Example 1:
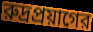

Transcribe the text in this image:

রুদ্রপ্রয়াগের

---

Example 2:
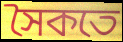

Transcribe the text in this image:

সৈকতে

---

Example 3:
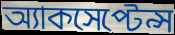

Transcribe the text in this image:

অ্যাকসেপ্টেন্স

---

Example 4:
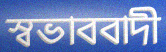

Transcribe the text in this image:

স্বভাববাদী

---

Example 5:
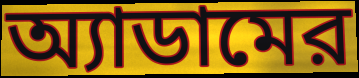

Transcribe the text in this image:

অ্যাডামের